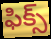
ఫిక్స్